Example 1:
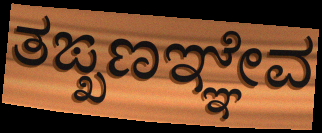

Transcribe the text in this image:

ತಙ್ಖಣಞ್ಞೇವ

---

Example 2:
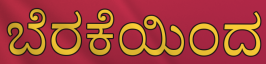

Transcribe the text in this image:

ಬೆರಕೆಯಿಂದ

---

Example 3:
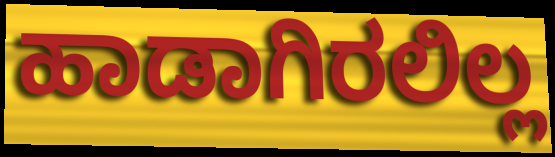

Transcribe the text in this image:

ಹಾಡಾಗಿರಲಿಲ್ಲ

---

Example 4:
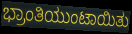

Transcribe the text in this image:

ಭ್ರಾಂತಿಯುಂಟಾಯಿತು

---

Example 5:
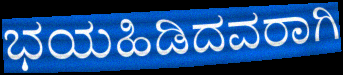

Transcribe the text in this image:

ಭಯಹಿಡಿದವರಾಗಿ